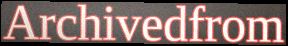
Archivedfrom